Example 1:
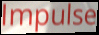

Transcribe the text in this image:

Impulse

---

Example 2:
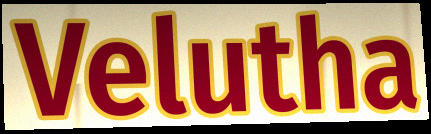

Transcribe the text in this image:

Velutha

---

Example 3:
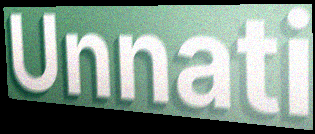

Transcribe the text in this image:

Unnati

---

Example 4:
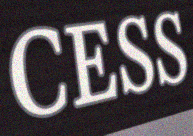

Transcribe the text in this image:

CESS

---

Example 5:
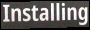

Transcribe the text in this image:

Installing